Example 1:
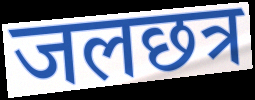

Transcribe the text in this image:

जलछत्र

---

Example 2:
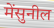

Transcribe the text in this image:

मेंसुनील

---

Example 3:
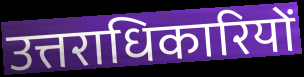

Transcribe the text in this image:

उत्तराधिकारियों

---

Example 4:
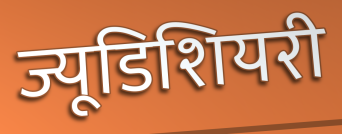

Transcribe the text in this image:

ज्यूडिशियरी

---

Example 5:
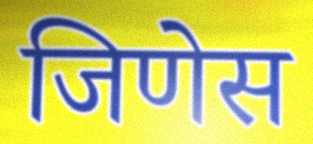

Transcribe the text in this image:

जिणेस